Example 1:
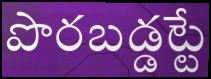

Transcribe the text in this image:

పొరబడ్డట్టే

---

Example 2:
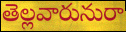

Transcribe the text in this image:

తెల్లవారునురా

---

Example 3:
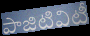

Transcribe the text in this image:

పాజిటివిటీ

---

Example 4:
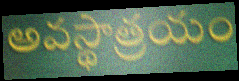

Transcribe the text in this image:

అవస్థాత్రయం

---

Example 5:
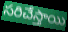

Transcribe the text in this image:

సరిచేస్తాయి